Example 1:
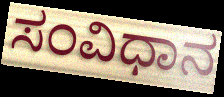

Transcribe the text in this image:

ಸಂವಿಧಾನ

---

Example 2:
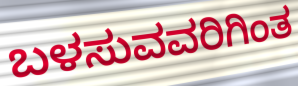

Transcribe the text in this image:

ಬಳಸುವವರಿಗಿಂತ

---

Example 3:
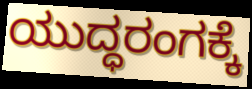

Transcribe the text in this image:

ಯುದ್ಧರಂಗಕ್ಕೆ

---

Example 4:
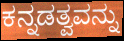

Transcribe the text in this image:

ಕನ್ನಡತ್ವವನ್ನು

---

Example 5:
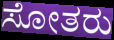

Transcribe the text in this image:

ಸೋತರು